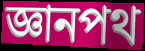
জ্ঞানপথ